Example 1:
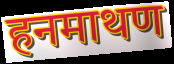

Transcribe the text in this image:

हनमाथण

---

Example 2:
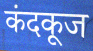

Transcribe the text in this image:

कंदकूज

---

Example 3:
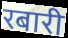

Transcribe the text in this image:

रबारी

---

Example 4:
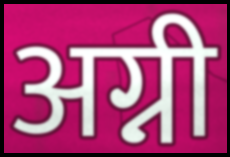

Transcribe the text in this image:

अग्नी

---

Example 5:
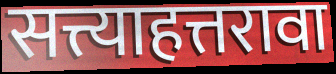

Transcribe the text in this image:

सत्त्याहत्तरावा